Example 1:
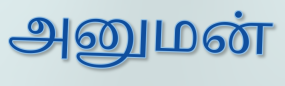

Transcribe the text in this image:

அனுமன்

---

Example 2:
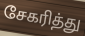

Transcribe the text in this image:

சேகரித்து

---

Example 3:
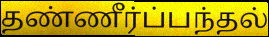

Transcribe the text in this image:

தண்ணீர்ப்பந்தல்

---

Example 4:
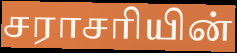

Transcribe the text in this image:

சராசரியின்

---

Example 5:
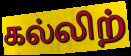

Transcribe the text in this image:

கல்லிற்